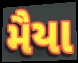
મૈયા